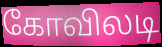
கோவிலடி